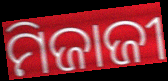
ମିଜାଜୀ